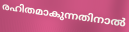
രഹിതമാകുന്നതിനാൽ